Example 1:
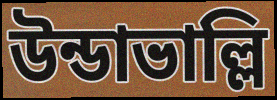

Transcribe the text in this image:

উন্ডাভাল্লি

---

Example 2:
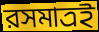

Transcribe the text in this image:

রসমাত্রই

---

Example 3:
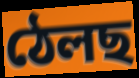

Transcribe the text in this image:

ঠেলছ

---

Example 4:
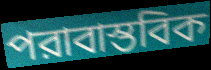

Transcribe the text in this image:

পরাবাস্তবিক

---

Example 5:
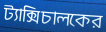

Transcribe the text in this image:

ট্যাক্সিচালকের